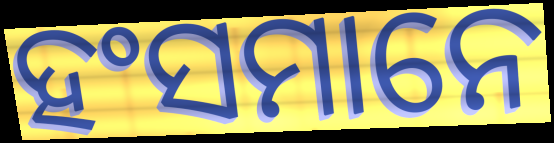
ହଂସମାନେ